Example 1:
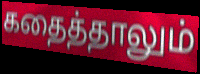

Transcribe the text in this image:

கதைத்தாலும்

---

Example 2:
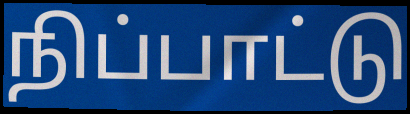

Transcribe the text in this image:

நிப்பாட்டு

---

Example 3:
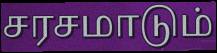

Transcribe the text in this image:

சரசமாடும்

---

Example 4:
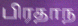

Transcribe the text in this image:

பிரதாந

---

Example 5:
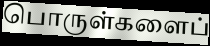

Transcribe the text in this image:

பொருள்களைப்